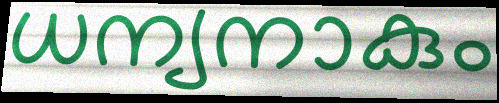
ധന്യനാകും